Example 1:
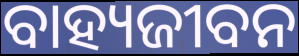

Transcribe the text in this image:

ବାହ୍ୟଜୀବନ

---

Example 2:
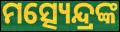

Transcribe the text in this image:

ମତ୍ସ୍ୟେନ୍ଦ୍ରଙ୍କ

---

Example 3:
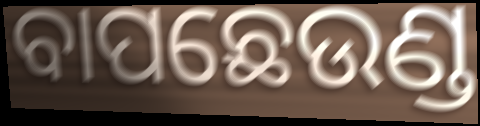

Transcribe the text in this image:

ବାପଛେଉଣ୍ଡ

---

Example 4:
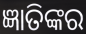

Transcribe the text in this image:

ଜ୍ଞାତିଙ୍କର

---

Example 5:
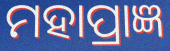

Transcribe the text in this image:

ମହାପ୍ରାଜ୍ଞ